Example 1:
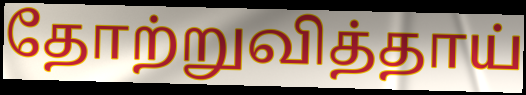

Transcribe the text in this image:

தோற்றுவித்தாய்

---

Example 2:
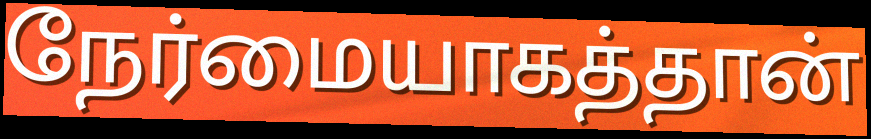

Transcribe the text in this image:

நேர்மையாகத்தான்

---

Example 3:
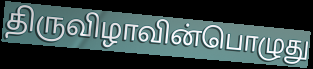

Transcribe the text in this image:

திருவிழாவின்பொழுது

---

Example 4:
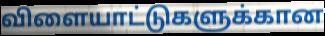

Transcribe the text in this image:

விளையாட்டுகளுக்கான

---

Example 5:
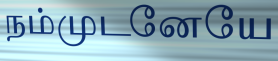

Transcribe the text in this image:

நம்முடனேயே